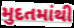
મુદતમાંથી